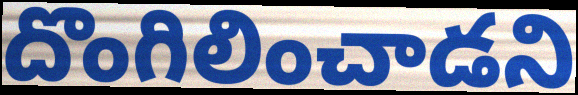
దొంగిలించాడని